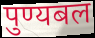
पुण्यबल